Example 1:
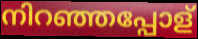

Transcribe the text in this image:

നിറഞ്ഞപ്പോള്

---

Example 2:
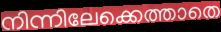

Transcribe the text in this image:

നിന്നിലേക്കെത്താതെ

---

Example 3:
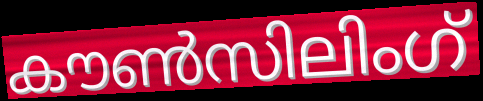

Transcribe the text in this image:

കൗൺസിലിംഗ്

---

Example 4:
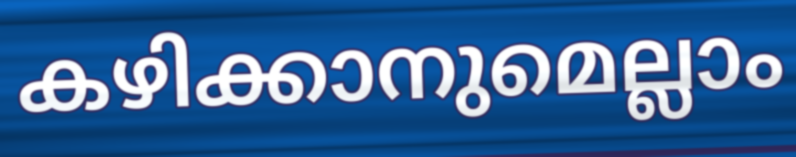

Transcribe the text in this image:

കഴിക്കാനുമെല്ലാം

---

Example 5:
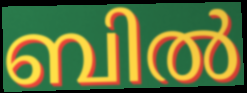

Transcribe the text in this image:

ബിൽ